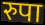
रुपा